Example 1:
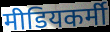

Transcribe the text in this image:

मीडियकर्मी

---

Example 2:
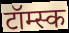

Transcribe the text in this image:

टॉम्स्क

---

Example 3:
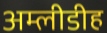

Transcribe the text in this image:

अम्लीडीह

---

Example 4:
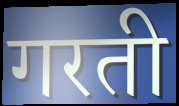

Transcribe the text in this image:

गरती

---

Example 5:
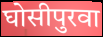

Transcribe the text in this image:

घोसीपुरवा